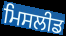
ਮਿਸਲੀਡ